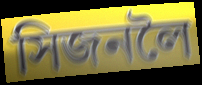
সিজনলৈ